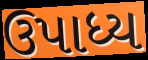
ઉપાધ્ય